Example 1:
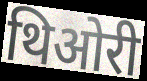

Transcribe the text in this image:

थिओरी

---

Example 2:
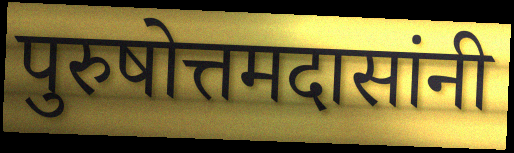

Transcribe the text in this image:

पुरुषोत्तमदासांनी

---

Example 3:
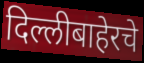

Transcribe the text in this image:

दिल्लीबाहेरचे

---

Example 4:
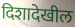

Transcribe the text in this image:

दिशादेखील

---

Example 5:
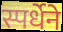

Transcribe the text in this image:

स्पर्धेने